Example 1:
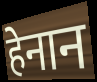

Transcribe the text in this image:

हेनान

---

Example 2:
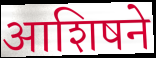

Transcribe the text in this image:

आशिषने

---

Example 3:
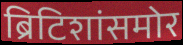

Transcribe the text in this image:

ब्रिटिशांसमोर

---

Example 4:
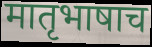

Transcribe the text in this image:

मातृभाषाच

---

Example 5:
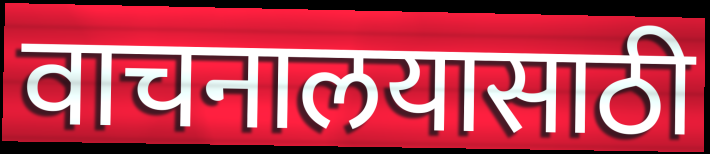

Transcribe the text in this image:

वाचनालयासाठी